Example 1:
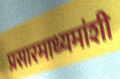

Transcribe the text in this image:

प्रसारमाध्यमांशी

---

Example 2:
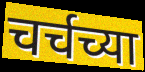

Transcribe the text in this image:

चर्चच्या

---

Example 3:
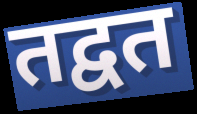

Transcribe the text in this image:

तद्वत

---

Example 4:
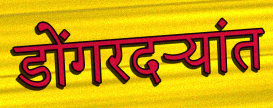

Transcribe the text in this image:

डोंगरदऱ्यांत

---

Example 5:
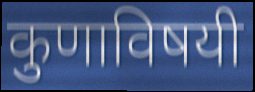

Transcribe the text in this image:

कुणाविषयी